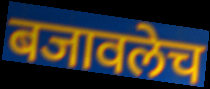
बजावलेच